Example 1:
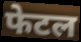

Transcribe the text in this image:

फेटल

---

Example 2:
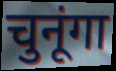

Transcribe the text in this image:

चुनूंगा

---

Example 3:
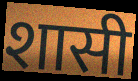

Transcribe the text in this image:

शासी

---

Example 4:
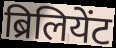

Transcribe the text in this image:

ब्रिलियेंट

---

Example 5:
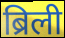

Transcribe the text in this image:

ब्रिली